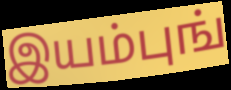
இயம்புங்